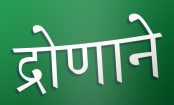
द्रोणाने